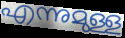
എന്നുമുള്ള